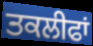
ਤਕਲੀਫਾਂ